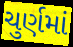
ચુર્ણમાં